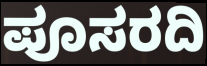
ಪೂಸರದಿ